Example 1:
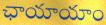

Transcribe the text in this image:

ఛాయాయాం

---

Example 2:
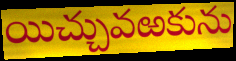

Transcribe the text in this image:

యిచ్చువఱకును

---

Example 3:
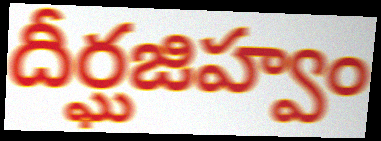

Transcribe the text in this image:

దీర్ఘజిహ్వం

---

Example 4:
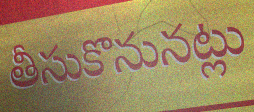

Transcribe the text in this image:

తీసుకొనునట్లు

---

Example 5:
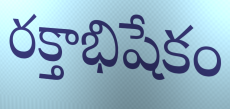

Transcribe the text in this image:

రక్తాభిషేకం